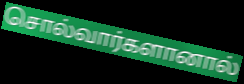
சொல்வார்களானால்